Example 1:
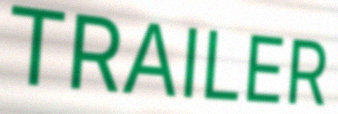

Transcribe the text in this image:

TRAILER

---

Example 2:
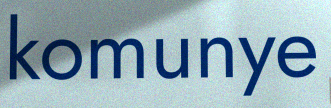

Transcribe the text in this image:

komunye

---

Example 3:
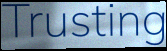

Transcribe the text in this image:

Trusting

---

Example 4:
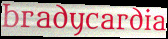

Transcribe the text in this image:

bradycardia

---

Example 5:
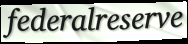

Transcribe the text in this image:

federalreserve